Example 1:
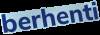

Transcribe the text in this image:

berhenti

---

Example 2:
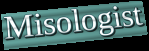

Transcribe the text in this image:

Misologist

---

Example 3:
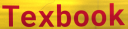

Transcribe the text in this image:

Texbook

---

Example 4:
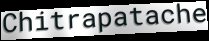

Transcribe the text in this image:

Chitrapatache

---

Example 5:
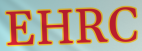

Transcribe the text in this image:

EHRC